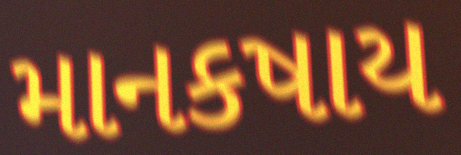
માનકષાય